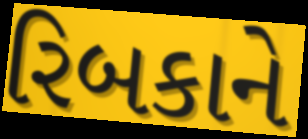
રિબકાને